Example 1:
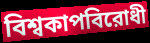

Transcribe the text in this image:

বিশ্বকাপবিরোধী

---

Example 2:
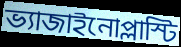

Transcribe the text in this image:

ভ্যাজাইনোপ্লাস্টি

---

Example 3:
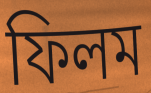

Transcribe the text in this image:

ফিলম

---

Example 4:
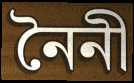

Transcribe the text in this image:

নৈনী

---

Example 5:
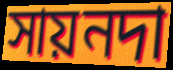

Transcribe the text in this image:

সায়নদা